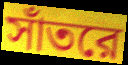
সাঁতরে